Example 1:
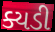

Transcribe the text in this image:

ક્યડી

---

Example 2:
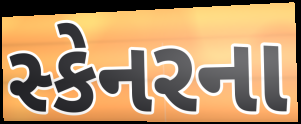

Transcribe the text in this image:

સ્કેનરના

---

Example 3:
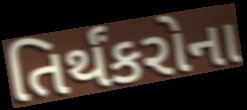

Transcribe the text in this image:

તિર્થંકરોના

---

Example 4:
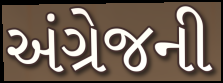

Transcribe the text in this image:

અંગ્રેજની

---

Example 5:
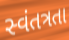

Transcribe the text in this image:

સ્વંતત્રતા